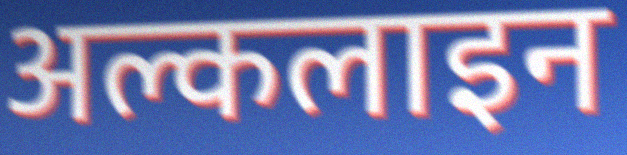
अल्कलाइन